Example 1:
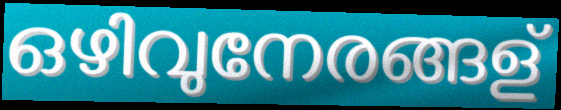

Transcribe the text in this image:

ഒഴിവുനേരങ്ങള്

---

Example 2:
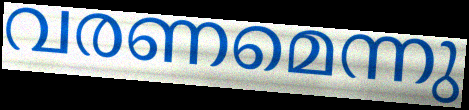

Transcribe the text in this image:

വരണമെന്നു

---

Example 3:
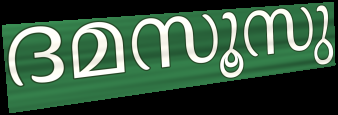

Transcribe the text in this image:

ദമസൂസു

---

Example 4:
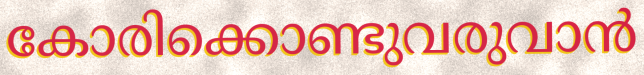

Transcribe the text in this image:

കോരിക്കൊണ്ടുവരുവാൻ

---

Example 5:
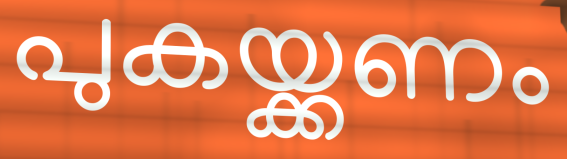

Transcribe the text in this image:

പുകയ്ക്കണം